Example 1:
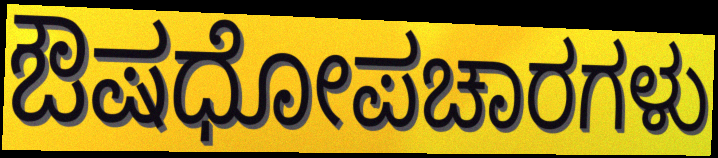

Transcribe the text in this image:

ಔಷಧೋಪಚಾರಗಳು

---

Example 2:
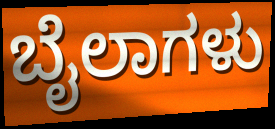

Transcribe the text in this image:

ಬೈಲಾಗಳು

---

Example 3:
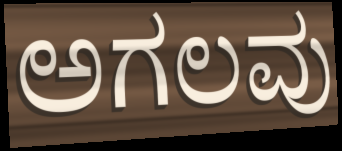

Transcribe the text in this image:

ಅಗಲವು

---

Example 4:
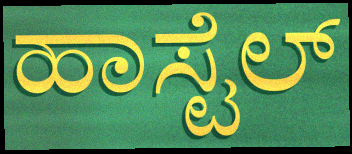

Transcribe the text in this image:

ಹಾಸ್ಟೆಲ್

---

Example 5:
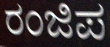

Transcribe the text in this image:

ರಂಜಿಪ